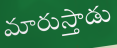
మారుస్తాడు